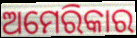
ଅମେରିକାର